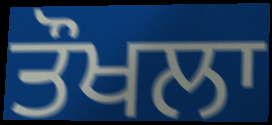
ਤੌਖਲਾ